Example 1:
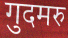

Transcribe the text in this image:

गुदमरु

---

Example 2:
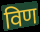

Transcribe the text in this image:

विण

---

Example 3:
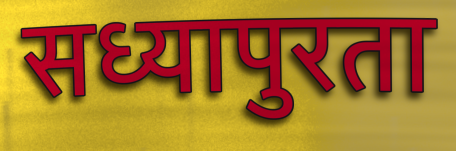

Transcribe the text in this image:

सध्यापुरता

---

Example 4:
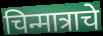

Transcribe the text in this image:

चिन्मात्राचे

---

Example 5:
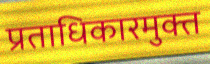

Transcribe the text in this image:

प्रताधिकारमुक्त